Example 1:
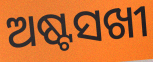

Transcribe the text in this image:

ଅଷ୍ଟସଖୀ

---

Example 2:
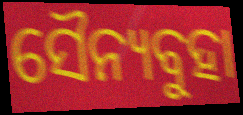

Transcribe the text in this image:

ସୈନ୍ୟବୁହା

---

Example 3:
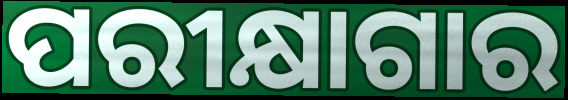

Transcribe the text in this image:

ପରୀକ୍ଷାଗାର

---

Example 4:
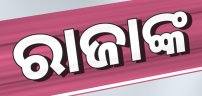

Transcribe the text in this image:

ରାଜାଙ୍କ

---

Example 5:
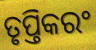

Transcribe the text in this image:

ତୃପ୍ତିକରଂ